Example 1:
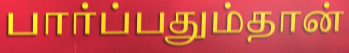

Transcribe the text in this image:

பார்ப்பதும்தான்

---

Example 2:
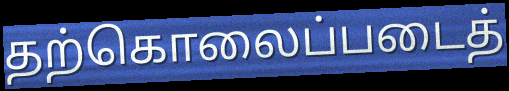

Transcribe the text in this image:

தற்கொலைப்படைத்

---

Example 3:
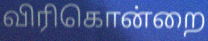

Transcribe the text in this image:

விரிகொன்றை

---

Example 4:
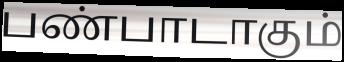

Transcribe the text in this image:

பண்பாடாகும்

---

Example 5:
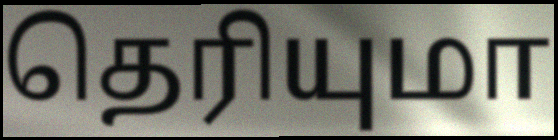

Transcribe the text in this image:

தெரியுமா